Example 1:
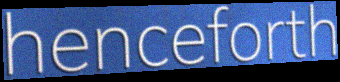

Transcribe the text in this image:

henceforth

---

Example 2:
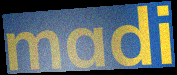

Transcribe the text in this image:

madi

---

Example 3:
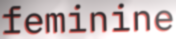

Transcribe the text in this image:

feminine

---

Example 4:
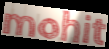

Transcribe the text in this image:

mohit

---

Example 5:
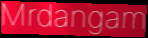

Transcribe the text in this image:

Mrdangam